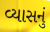
વ્યાસનું